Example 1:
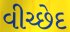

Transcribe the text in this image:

વીચ્છેદ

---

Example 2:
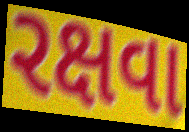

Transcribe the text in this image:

રક્ષવા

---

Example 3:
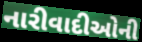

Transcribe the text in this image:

નારીવાદીઓની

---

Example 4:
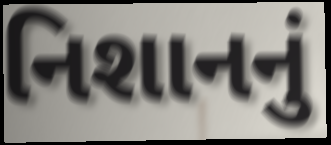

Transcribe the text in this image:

નિશાનનું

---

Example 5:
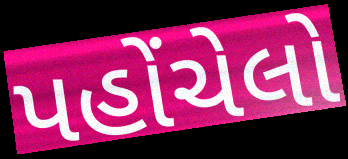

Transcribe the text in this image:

પહોંચેલો